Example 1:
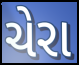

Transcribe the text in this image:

ચેરા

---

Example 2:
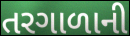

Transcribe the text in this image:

તરગાળાની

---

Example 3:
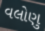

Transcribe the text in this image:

વલોણુ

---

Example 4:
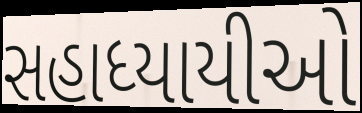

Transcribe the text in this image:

સહાધ્યાયીઓ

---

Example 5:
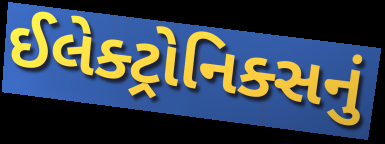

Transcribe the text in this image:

ઈલેક્ટ્રોનિક્સનું